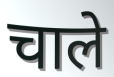
चाले